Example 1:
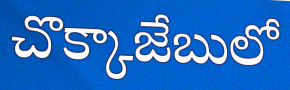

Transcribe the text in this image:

చొక్కాజేబులో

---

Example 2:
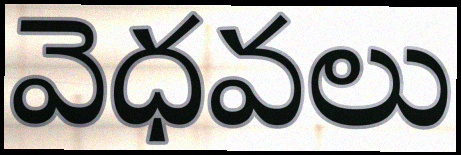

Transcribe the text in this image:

వెధవలు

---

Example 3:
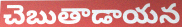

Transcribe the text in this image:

చెబుతాడాయన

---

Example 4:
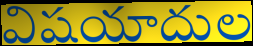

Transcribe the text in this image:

విషయాదుల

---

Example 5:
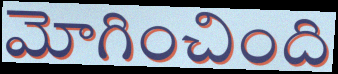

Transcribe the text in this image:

మోగించింది